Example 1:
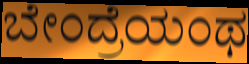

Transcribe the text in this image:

ಬೇಂದ್ರೆಯಂಥ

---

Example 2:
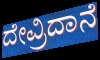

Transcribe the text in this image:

ದೇವ್ರಿದಾನೆ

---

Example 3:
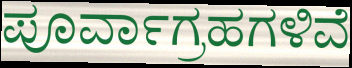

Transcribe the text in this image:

ಪೂರ್ವಾಗ್ರಹಗಳಿವೆ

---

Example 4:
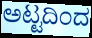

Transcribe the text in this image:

ಅಟ್ಟದಿಂದ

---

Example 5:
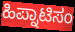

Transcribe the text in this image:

ಹಿಪ್ನಾಟಿಸಂ